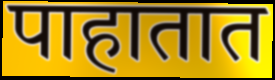
पाहातात